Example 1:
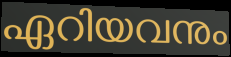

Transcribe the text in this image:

ഏറിയവനും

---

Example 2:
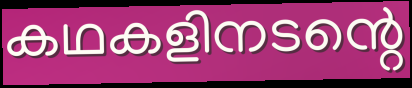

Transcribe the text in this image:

കഥകളിനടന്റെ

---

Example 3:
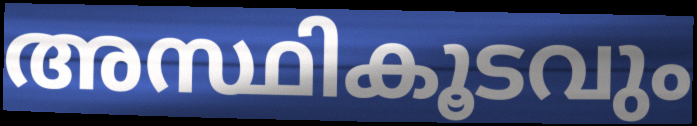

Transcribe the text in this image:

അസ്ഥികൂടവും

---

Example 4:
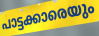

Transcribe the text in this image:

പാട്ടക്കാരെയും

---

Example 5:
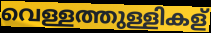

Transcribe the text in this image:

വെള്ളത്തുള്ളികള്